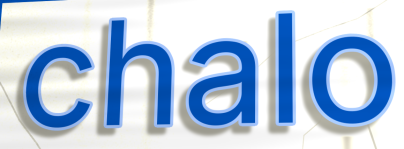
chalo